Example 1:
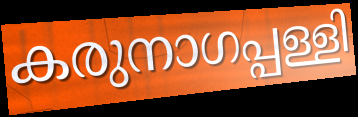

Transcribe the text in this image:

കരുനാഗപ്പള്ളി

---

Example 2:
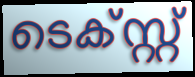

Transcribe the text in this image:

ടെക്സ്റ്റ്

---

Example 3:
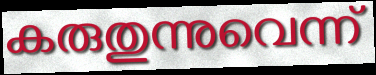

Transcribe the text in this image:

കരുതുന്നുവെന്ന്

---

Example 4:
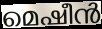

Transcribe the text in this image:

മെഷീൻ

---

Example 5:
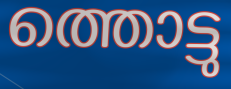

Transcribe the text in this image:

ത്തൊട്ടു